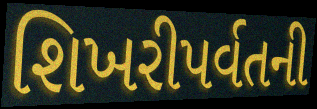
શિખરીપર્વતની